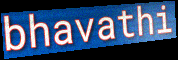
bhavathi